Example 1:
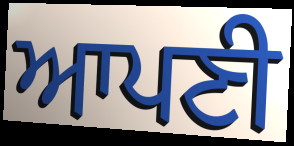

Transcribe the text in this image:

ਆਪਣੀ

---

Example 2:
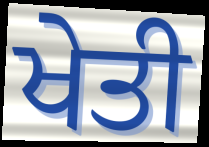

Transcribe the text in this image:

ਖੇਤੀ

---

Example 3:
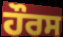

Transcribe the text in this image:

ਹੌਰਸ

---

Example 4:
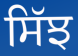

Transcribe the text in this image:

ਸਿੱਝ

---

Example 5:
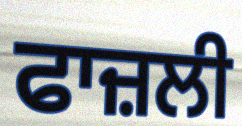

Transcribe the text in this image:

ਫਾਜ਼ਲੀ